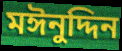
মঈনুদ্দিন